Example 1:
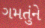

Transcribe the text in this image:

ગમતુંને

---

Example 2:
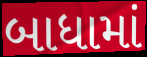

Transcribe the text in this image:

બાધામાં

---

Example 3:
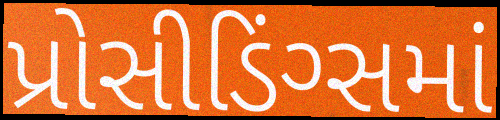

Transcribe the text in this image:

પ્રોસીડિંગ્સમાં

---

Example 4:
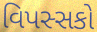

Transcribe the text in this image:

વિપસ્સકો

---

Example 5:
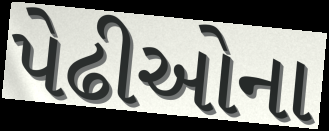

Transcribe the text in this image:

પેઢીઓના